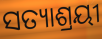
ସତ୍ୟାଶ୍ରୟୀ